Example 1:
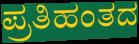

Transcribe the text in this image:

ಪ್ರತಿಹಂತದ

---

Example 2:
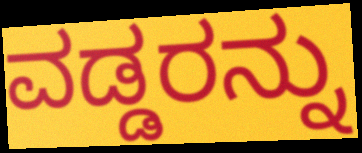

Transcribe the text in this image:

ವಡ್ಡರನ್ನು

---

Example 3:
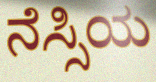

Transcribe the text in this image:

ನೆಸ್ಸಿಯ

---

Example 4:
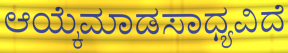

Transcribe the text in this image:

ಆಯ್ಕೆಮಾಡಸಾಧ್ಯವಿದೆ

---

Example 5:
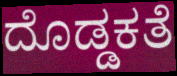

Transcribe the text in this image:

ದೊಡ್ಡಕತೆ